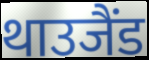
थाउजैंड